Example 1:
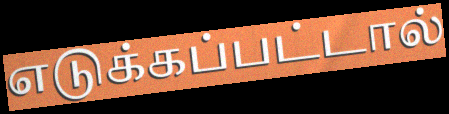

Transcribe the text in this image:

எடுக்கப்பட்டால்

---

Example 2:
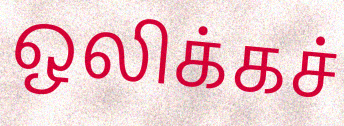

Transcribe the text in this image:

ஒலிக்கச்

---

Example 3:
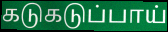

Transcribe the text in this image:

கடுகடுப்பாய்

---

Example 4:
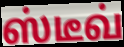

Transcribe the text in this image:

ஸ்டீவ்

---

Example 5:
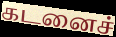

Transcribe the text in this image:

கடனைச்